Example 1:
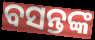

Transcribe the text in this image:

ବସନ୍ତଙ୍କ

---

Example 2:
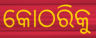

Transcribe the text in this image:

କୋଠରିକୁ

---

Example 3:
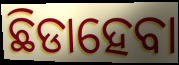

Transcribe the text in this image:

ଛିଡାହେବା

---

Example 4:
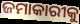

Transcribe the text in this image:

ଜମାକାରୀକୁ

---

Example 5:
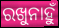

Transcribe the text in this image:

ରଖୁନାହୁଁ